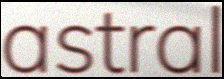
astral